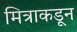
मित्राकडून